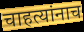
चाहत्यांनाच